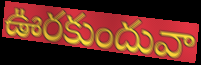
ఊరకుందువా